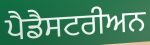
ਪੈਡੈਸਟਰੀਅਨ